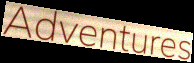
Adventures